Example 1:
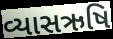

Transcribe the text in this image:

વ્યાસઋષિ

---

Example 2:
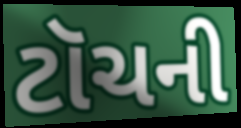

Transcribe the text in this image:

ટૉચની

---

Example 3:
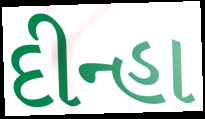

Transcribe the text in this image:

દીન્હા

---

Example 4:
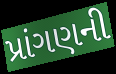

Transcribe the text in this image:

પ્રાંગણની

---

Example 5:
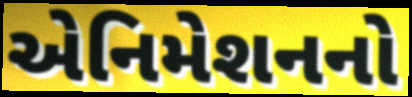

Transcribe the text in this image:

એનિમેશનનો